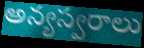
అన్యస్వరాలు